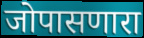
जोपासणारा